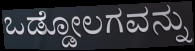
ಒಡ್ಡೋಲಗವನ್ನು